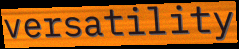
versatility